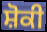
ਸ਼ੋਕੀ